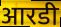
आरडी